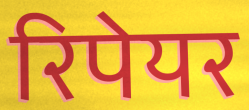
रिपेयर